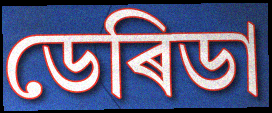
ডেৰিডা